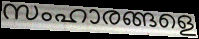
സംഹാരങ്ങളെ